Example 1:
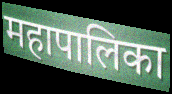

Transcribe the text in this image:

महापालिका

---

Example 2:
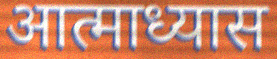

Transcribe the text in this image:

आत्माध्यास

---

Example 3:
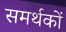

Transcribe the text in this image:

समर्थकों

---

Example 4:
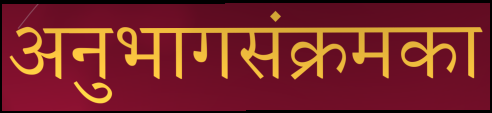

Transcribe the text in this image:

अनुभागसंक्रमका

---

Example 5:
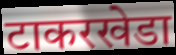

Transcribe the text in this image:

टाकरखेडा